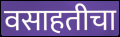
वसाहतीचा